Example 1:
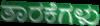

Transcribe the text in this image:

ತಾರಕೆಗಳು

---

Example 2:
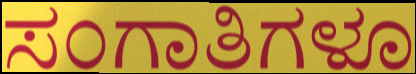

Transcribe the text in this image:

ಸಂಗಾತಿಗಳೂ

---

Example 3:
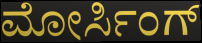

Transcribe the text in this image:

ಮೋರ್ಸಿಂಗ್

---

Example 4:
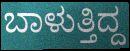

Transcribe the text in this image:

ಬಾಳುತ್ತಿದ್ದ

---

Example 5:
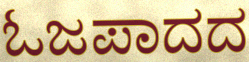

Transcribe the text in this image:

ಓಜಪಾದದ